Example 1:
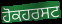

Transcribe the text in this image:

ਹੋਕਹਰਸਟ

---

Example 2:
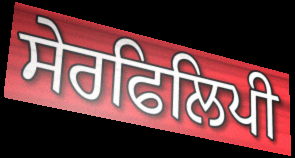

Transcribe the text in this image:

ਸੇਰਫਿਲਿਪੀ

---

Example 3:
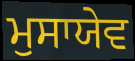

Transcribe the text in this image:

ਮੁਸਾਯੇਵ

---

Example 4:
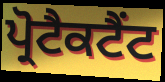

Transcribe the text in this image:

ਪ੍ਰੋਟੈਕਟੈਂਟ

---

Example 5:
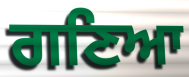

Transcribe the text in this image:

ਗਣਿਆ